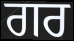
ਗਰ